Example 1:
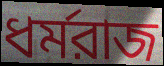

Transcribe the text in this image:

ধর্মরাজ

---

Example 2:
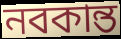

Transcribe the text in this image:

নবকান্ত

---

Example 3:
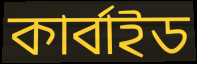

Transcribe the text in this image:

কার্বাইড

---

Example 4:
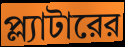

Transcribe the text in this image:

প্ল্যাটারের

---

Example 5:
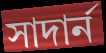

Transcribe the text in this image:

সাদার্ন